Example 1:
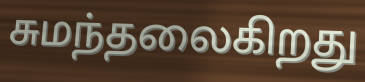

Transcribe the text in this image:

சுமந்தலைகிறது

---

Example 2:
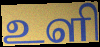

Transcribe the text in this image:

உளி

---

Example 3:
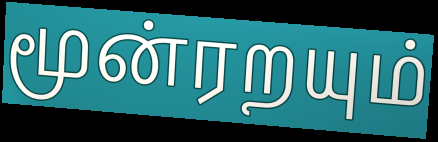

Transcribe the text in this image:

மூன்ரறயும்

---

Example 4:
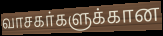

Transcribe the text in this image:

வாசகர்களுக்கான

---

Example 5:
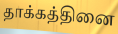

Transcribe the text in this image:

தாக்கத்தினை